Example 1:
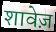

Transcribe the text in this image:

शावेज़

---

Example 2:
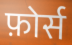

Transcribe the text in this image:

फ़ोर्स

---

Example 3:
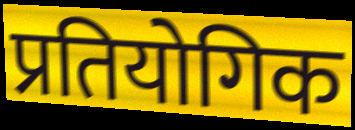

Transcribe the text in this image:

प्रतियोगिक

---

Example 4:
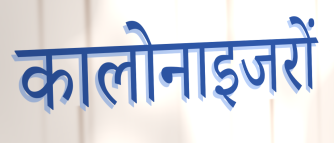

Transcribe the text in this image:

कालोनाइजरों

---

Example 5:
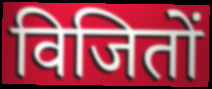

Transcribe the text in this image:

विजितों